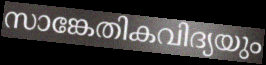
സാങ്കേതികവിദ്യയും